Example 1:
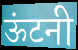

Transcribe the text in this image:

ऊंटनी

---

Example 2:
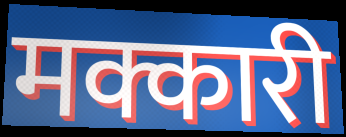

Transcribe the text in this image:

मक्कारी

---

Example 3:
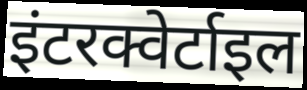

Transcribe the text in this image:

इंटरक्वेर्टाइल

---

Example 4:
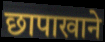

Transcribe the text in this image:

छापाखाने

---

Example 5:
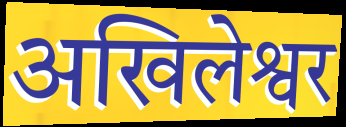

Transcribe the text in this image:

अखिलेश्वर